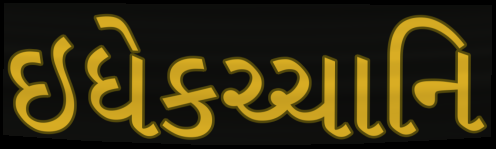
ઇધેકચ્ચાનિ